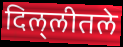
दिल्लीतले